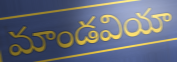
మాండవియా